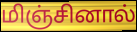
மிஞ்சினால்